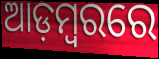
ଆଡ଼ମ୍ୱରରେ